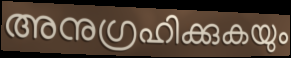
അനുഗ്രഹിക്കുകയും